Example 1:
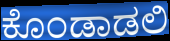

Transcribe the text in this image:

ಕೊಂಡಾಡಲಿ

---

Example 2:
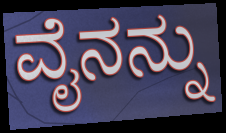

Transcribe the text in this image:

ವೈನನ್ನು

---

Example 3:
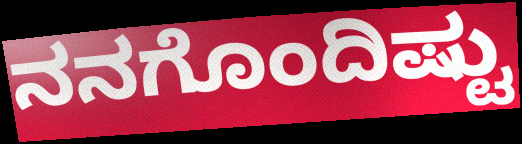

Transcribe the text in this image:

ನನಗೊಂದಿಷ್ಟು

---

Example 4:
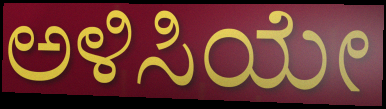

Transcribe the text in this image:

ಅಳಿಸಿಯೇ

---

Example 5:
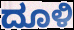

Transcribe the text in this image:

ದೂಳಿ